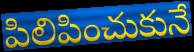
పిలిపించుకునే